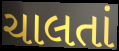
ચાલતાં